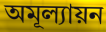
অমূল্যায়ন